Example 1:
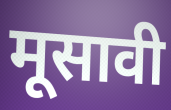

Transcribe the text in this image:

मूसावी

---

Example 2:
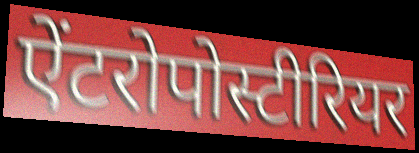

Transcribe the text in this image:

ऐंटरोपोस्टीरियर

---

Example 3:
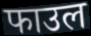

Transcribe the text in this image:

फाउल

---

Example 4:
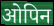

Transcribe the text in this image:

ओपिन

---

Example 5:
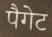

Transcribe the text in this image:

पैगेट